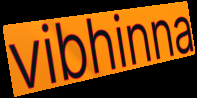
vibhinna